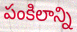
పంకిలాన్ని